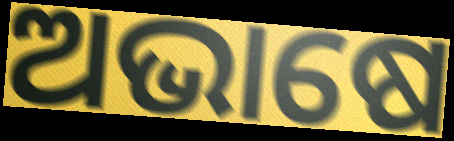
ଅଭାଷେ